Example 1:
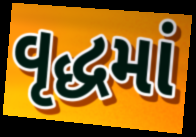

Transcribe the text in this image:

વૃદ્ધમાં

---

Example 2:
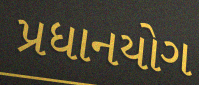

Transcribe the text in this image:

પ્રધાનયોગ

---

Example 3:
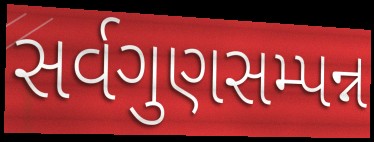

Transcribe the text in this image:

સર્વગુણસમ્પન્ન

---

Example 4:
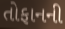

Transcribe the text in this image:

તોફાનની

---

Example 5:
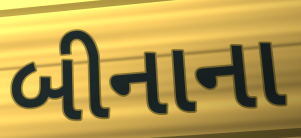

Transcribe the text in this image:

બીનાના